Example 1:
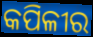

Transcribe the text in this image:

କପିଳୀର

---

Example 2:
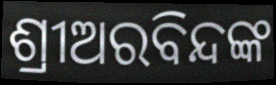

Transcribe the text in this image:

ଶ୍ରୀଅରବିନ୍ଦଙ୍କ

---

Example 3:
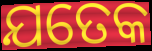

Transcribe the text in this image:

ଯତେକ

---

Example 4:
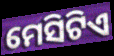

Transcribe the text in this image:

ମେସିଟିଏ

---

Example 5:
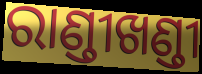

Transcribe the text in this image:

ରାଣ୍ଡୀଖଣ୍ଡୀ